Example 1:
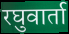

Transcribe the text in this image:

रघुवार्ता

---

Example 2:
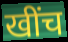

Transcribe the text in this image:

खींच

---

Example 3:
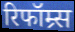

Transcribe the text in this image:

रिफॉम्र्स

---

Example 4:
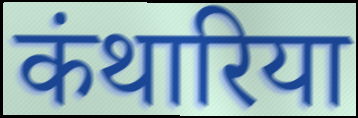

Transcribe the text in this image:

कंथारिया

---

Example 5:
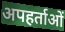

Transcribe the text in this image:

अपहर्ताओं